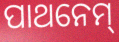
ପାଥନେମ୍